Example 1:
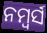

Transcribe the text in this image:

ନମ୍ୱର୍ସ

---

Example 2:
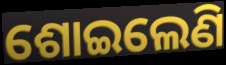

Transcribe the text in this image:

ଶୋଇଲେଣି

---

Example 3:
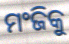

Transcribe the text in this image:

ମଂଜିକୁ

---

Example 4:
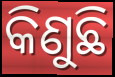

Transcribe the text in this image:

କିଣୁଛି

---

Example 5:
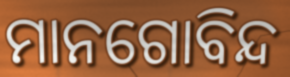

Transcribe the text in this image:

ମାନଗୋବିନ୍ଦ